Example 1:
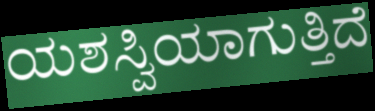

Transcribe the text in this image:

ಯಶಸ್ವಿಯಾಗುತ್ತಿದೆ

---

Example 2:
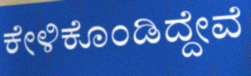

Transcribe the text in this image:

ಕೇಳಿಕೊಂಡಿದ್ದೇವೆ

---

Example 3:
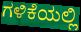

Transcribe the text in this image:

ಗಳಿಕೆಯಲ್ಲಿ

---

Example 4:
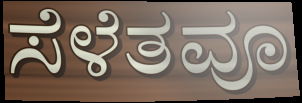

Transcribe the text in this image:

ಸೆಳೆತವೂ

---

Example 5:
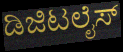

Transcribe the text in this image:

ಡಿಜಿಟಲೈಸ್